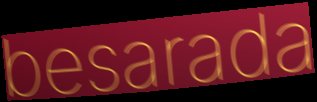
besarada